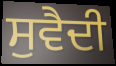
ਸੁਵੈਦੀ